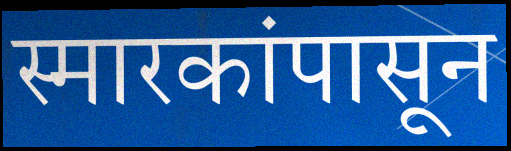
स्मारकांपासून